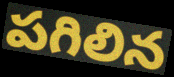
పగిలిన